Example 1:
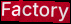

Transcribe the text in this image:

Factory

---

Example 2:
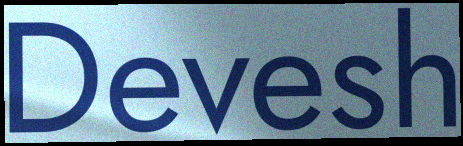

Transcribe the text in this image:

Devesh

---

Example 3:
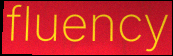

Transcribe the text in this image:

fluency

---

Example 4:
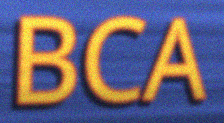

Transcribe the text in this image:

BCA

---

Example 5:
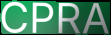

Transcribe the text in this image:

CPRA